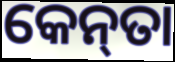
କେନ୍‌ତା